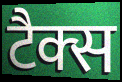
टैक्‍स